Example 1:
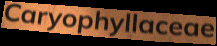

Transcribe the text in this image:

Caryophyllaceae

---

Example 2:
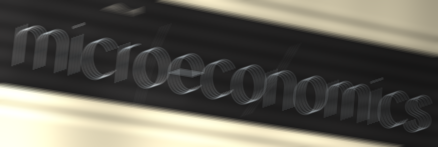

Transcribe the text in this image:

microeconomics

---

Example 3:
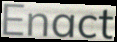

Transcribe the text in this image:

Enact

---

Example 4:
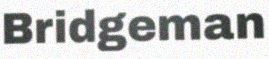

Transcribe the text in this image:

Bridgeman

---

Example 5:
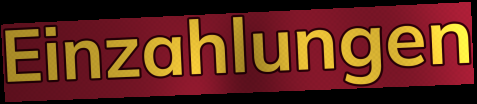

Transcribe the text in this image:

Einzahlungen